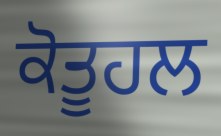
ਕੋਤੂਹਲ